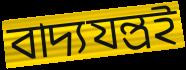
বাদ্যযন্ত্ৰই